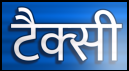
टैक्‍सी